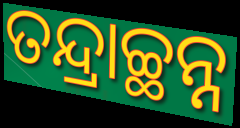
ତନ୍ଦ୍ରାଚ୍ଛନ୍ନ